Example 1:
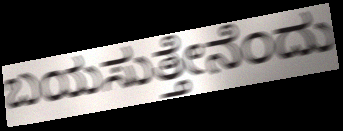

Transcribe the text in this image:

ಬಯಸುತ್ತೇನೆಂದು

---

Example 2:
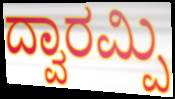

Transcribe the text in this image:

ದ್ವಾರಮ್ಪಿ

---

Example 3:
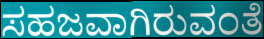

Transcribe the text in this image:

ಸಹಜವಾಗಿರುವಂತೆ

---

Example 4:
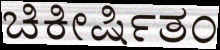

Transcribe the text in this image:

ಚಿಕೀರ್ಷಿತಂ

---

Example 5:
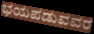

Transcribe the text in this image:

ಭಯಪಡುವವರ